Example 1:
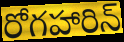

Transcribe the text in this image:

రోగహారిన్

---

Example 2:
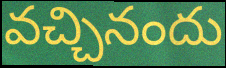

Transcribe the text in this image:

వచ్చినందు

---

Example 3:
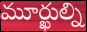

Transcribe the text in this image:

మూర్ఖుల్ని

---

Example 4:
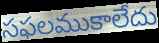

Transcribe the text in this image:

సఫలముకాలేదు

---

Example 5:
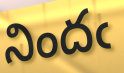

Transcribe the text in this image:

నిందఁ